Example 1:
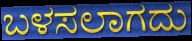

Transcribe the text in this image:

ಬಳಸಲಾಗದು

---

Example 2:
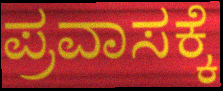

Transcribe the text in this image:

ಪ್ರವಾಸಕ್ಕೆ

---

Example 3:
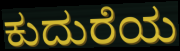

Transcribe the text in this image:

ಕುದುರೆಯ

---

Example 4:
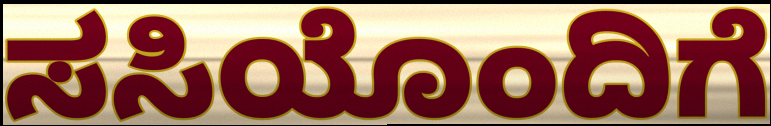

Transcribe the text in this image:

ಸಸಿಯೊಂದಿಗೆ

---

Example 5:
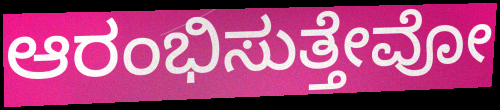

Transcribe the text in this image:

ಆರಂಭಿಸುತ್ತೇವೋ